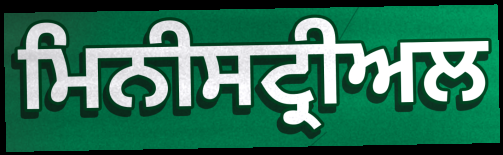
ਮਿਨੀਸਟ੍ਰੀਅਲ